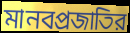
মানবপ্রজাতির